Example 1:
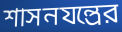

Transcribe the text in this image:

শাসনযন্ত্রের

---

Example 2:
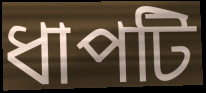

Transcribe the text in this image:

ধাপটি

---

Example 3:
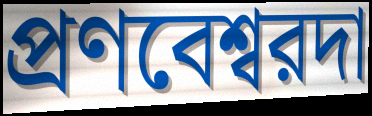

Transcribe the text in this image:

প্রণবেশ্বরদা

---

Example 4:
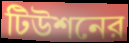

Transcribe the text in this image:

টিউশনের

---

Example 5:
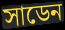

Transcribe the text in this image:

সাডেন